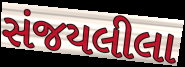
સંજયલીલા